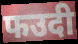
फउदी